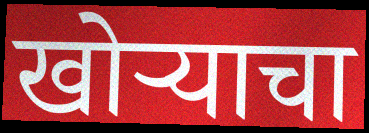
खोर्‍याचा